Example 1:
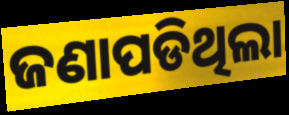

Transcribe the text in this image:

ଜଣାପଡିଥିଲା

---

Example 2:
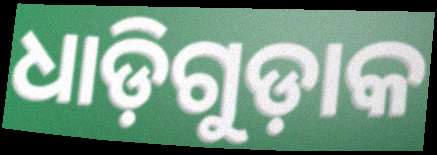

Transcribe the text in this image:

ଧାଡ଼ିଗୁଡ଼ାକ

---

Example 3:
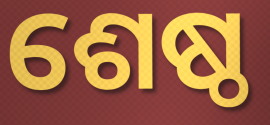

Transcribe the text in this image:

ଶେଷ୍ଠ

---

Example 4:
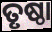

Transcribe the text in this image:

ତୃଷ୍ଠା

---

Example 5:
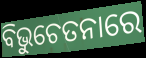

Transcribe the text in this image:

ବିଭୁଚେତନାରେ